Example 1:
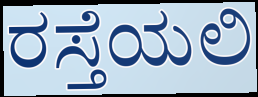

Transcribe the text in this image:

ರಸ್ತೆಯಲಿ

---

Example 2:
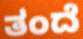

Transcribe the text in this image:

ತಂದೆ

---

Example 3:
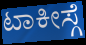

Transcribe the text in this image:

ಟಾಕೀಸ್ಗೆ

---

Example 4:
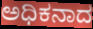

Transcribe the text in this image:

ಅಧಿಕನಾದ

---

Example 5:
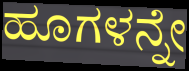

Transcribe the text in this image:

ಹೂಗಳನ್ನೇ